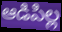
ఆడిపిల్ల